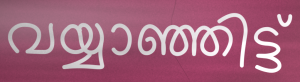
വയ്യാഞ്ഞിട്ട്